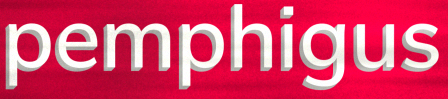
pemphigus